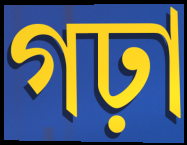
গঢ়া